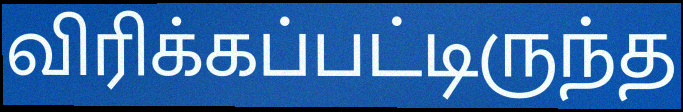
விரிக்கப்பட்டிருந்த